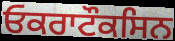
ਓਕਰਾਟੌਕਸਿਨ